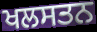
ਖਲਸਤਨ